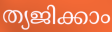
ത്യജിക്കാം